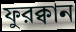
ফুরক্বান